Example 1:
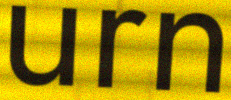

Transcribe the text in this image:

urn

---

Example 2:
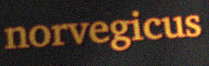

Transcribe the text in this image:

norvegicus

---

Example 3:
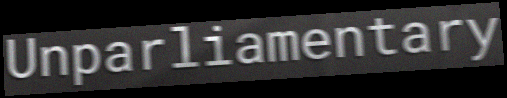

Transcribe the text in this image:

Unparliamentary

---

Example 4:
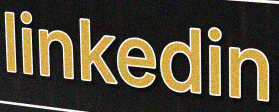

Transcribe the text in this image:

linkedin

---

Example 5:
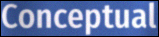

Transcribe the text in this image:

Conceptual